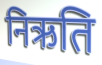
निऋति